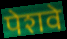
पेशवे